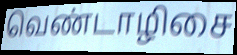
வெண்டாழிசை